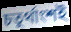
চতুর্থাংশই